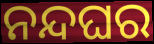
ନନ୍ଦଘର